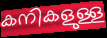
കനികളുള്ള